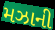
મઝાની